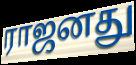
ராஜனது